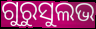
ଗୁରୁସୁଲଭ